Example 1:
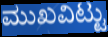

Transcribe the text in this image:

ಮುಖವಿಟ್ಟು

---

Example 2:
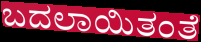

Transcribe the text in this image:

ಬದಲಾಯಿತಂತೆ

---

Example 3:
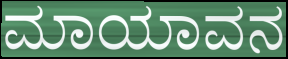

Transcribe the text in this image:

ಮಾಯಾವನ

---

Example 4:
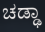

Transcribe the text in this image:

ಚಡ್ಢಾ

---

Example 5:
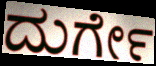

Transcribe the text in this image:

ದುರ್ಗೇ